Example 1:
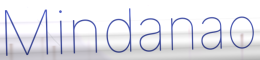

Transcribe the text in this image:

Mindanao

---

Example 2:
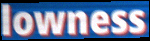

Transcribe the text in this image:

lowness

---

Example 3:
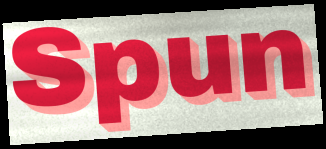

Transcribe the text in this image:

Spun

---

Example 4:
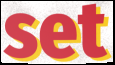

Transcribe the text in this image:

set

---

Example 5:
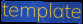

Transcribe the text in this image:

template